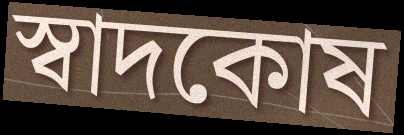
স্বাদকোষ